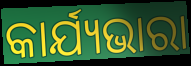
କାର୍ଯ୍ୟଭାରା